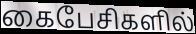
கைபேசிகளில்